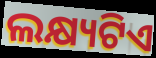
ଲକ୍ଷ୍ୟଟିଏ